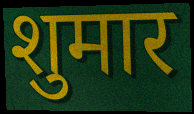
शुमार